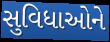
સુવિધાઓને